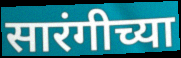
सारंगीच्या